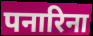
पनारिना